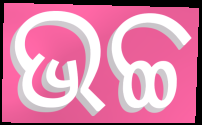
ଭଚ୍ଚ